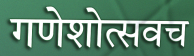
गणेशोत्सवच